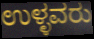
ಉಳ್ಳವರು